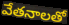
వేతనాలతో